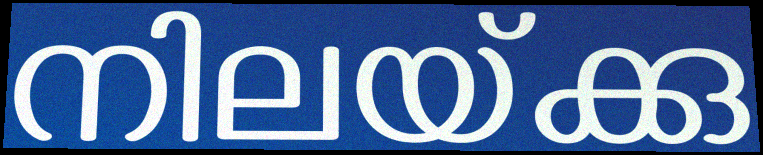
നിലയ്‌ക്കു